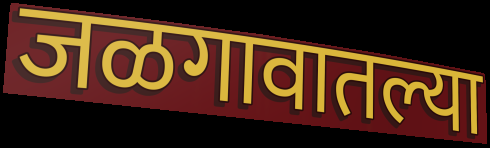
जळगावातल्या